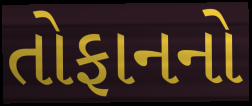
તોફાનનો